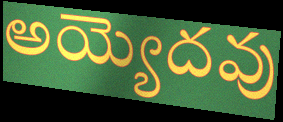
అయ్యెదవు